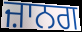
ਜ਼ਾਨਗ